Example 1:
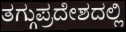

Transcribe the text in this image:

ತಗ್ಗುಪ್ರದೇಶದಲ್ಲಿ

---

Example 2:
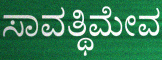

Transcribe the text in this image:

ಸಾವತ್ಥಿಮೇವ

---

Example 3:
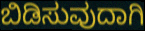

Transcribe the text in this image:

ಬಿಡಿಸುವುದಾಗಿ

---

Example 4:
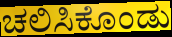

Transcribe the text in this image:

ಚಲಿಸಿಕೊಂಡು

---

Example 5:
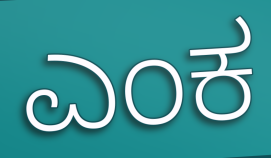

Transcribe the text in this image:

ಎಂಕ